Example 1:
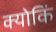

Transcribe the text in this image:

क्योकिं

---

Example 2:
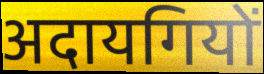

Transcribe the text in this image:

अदायगियों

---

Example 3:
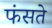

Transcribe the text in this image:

फंसते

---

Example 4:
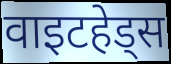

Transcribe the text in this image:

वाइटहेड्स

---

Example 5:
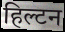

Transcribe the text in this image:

हिल्टन